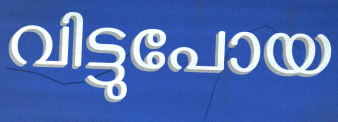
വിട്ടുപോയ